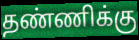
தண்ணிக்கு